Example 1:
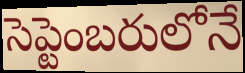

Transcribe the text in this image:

సెప్టెంబరులోనే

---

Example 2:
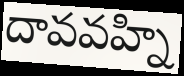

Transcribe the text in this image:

దావవహ్ని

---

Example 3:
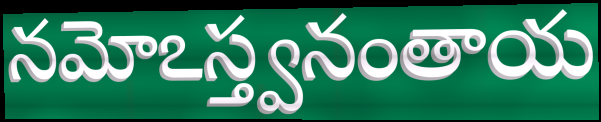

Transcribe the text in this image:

నమోఽస్త్వనంతాయ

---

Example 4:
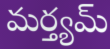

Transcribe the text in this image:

మర్త్యమ్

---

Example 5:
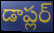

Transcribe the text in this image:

డాప్లర్